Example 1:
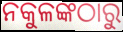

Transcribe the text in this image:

ନକୁଳଙ୍କଠାରୁ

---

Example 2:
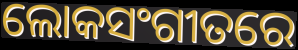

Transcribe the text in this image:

ଲୋକସଂଗୀତରେ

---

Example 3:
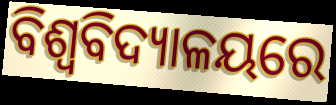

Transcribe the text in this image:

ବିଶ୍ୱବିଦ୍ୟାଳୟରେ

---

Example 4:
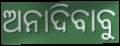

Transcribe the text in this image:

ଅନାଦିବାବୁ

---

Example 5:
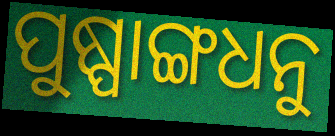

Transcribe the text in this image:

ପୁଷ୍ପାଙ୍ଗଧନୁ